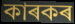
কাৰকৰ